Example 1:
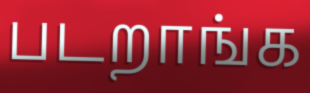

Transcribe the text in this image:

படறாங்க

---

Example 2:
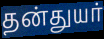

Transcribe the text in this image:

தன்துயர்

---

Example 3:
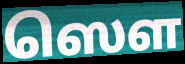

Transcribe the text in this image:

ஸௌ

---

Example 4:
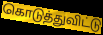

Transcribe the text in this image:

கொடுத்துவிட்டு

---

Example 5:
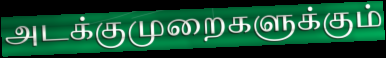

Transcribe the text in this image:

அடக்குமுறைகளுக்கும்